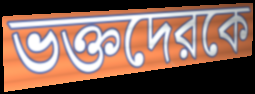
ভক্তদেরকে